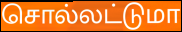
சொல்லட்டுமா